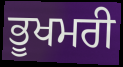
ਭੂਖਮਰੀ